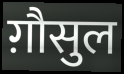
ग़ौसुल